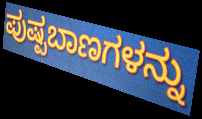
ಪುಷ್ಪಬಾಣಗಳನ್ನು